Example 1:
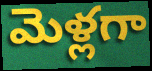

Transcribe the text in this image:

మెళ్లగా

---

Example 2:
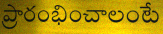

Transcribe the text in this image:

ప్రారంభించాలంటే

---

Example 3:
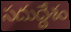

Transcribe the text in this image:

సదుద్దేశం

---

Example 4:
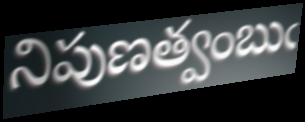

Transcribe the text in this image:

నిపుణత్వంబుఁ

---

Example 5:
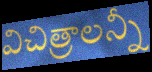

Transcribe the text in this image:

విచిత్రాలన్నీ